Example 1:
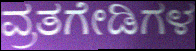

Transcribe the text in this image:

ವ್ರತಗೇಡಿಗಳ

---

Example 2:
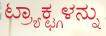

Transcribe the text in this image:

ಟ್ರ್ಯಾಕ್ಟ್ಗಳನ್ನು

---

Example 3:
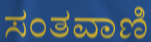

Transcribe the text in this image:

ಸಂತವಾಣಿ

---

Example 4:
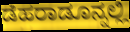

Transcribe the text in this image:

ಡೆಹರಾಡೂನ್ನಲ್ಲಿ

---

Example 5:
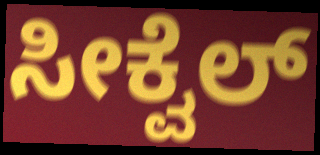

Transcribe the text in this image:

ಸೀಕ್ವೆಲ್